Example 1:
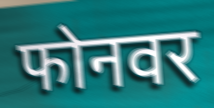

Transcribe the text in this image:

फोनवर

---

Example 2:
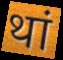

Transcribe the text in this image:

थां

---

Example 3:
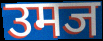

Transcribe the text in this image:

उमज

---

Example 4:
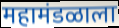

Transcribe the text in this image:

महामंडळाला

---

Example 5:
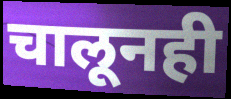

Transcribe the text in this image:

चालूनही